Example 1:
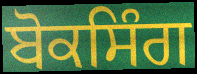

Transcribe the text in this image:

ਬੋਕਸਿੰਗ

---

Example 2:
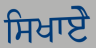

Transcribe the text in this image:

ਸਿਖਾਏੇ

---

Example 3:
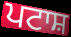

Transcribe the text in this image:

ਪਟਾਸ਼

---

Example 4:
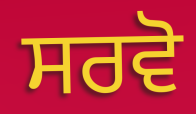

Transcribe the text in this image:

ਸਰਵੋ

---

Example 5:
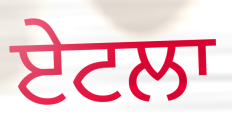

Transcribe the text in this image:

ਏਟਲਾ